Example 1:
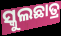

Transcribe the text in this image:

ସ୍କୁଲଛାତ୍ର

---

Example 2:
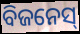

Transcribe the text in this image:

ବିଜନେସ୍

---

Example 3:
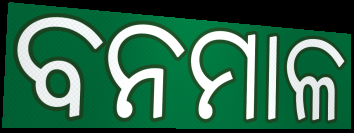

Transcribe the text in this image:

ବନମାଳ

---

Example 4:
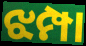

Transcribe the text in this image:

ଝମ୍ପା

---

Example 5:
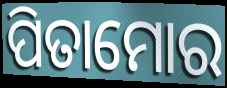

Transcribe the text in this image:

ପିତାମୋର